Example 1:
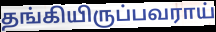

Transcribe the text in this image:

தங்கியிருப்பவராய்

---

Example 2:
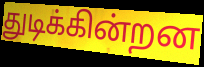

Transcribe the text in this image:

துடிக்கின்றன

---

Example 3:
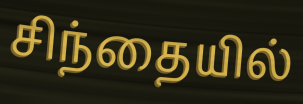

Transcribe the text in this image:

சிந்தையில்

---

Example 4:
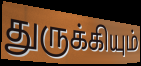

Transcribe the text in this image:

துருக்கியும்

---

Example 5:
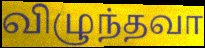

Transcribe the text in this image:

விழுந்தவா